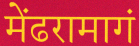
मेंढरामागं